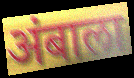
अंबाला